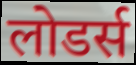
लोडर्स